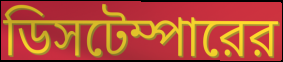
ডিসটেম্পারের